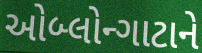
ઓબ્લોન્ગાટાને